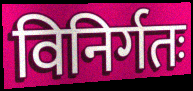
विनिर्गतः